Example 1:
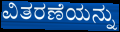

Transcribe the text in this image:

ವಿತರಣೆಯನ್ನು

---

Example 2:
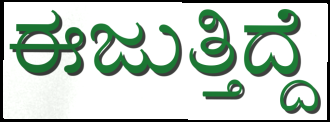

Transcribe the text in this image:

ಈಜುತ್ತಿದ್ದೆ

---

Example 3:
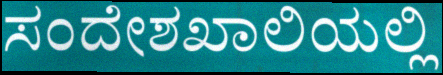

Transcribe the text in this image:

ಸಂದೇಶಖಾಲಿಯಲ್ಲಿ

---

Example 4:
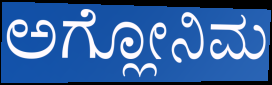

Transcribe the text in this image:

ಅಗ್ಲೋನಿಮ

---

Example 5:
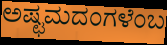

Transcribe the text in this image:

ಅಷ್ಟಮದಂಗಳೆಂಬ